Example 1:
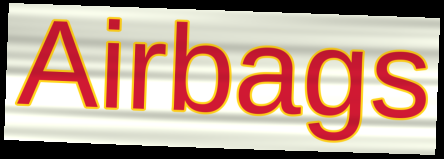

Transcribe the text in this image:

Airbags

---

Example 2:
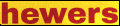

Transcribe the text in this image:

hewers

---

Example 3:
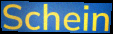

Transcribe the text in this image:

Schein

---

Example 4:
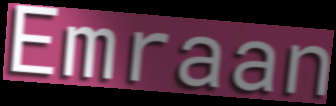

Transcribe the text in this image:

Emraan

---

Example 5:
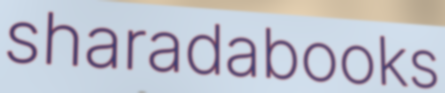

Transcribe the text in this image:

sharadabooks